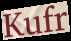
Kufr